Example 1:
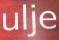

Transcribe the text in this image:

ulje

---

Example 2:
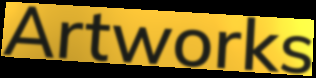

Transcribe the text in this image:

Artworks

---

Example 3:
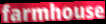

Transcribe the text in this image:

farmhouse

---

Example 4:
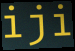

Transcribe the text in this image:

iji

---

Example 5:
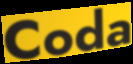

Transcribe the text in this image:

Coda